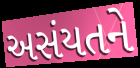
અસંયતને